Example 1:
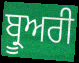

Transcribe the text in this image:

ਬ੍ਰੂਅਰੀ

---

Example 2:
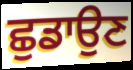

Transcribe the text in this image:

ਛੁਡਾਉਣ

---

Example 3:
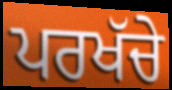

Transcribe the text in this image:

ਪਰਖੱਚੇ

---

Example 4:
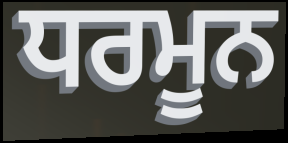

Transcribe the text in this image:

ਧਰਮੂਨ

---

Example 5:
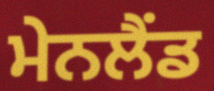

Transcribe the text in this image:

ਮੇਨਲੈਂਡ